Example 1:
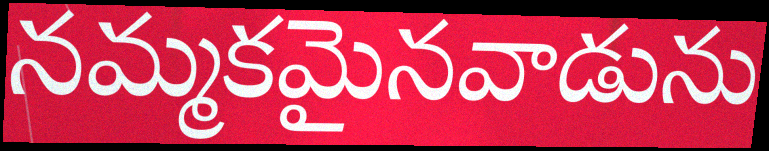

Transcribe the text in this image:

నమ్మకమైనవాడును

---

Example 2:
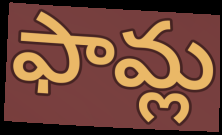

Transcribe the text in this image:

ఫామ్ల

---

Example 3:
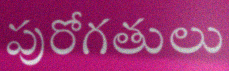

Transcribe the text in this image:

పురోగతులు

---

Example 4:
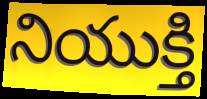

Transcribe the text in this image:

నియుక్తి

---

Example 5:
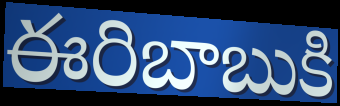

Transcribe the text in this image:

ఈరిబాబుకి